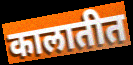
कालातीत